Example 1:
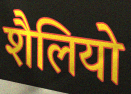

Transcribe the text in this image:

शैलियो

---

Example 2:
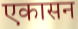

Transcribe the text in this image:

एकासन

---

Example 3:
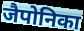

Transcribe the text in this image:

जैपोनिका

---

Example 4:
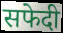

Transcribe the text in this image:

सफेदी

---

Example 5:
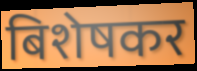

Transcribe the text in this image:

बिशेषकर